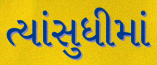
ત્યાંસુધીમાં